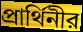
প্রার্থিনীর